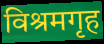
विश्रमगृह